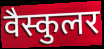
वैस्कुलर